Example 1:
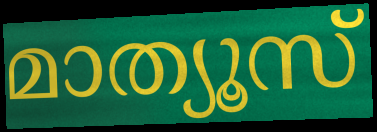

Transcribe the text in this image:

മാത്യൂസ്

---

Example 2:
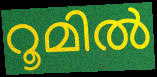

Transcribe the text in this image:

റൂമിൽ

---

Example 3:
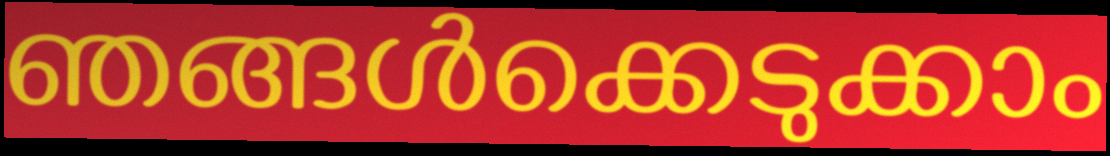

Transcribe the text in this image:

ഞങ്ങൾക്കെടുക്കാം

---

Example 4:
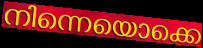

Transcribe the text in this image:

നിന്നെയൊക്കെ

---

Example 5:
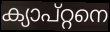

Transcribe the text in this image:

ക്യാപ്റ്റനെ